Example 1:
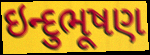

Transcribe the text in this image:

ઇન્દુભૂષણ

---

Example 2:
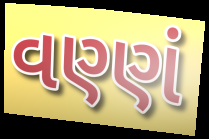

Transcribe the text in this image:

વણ્ણં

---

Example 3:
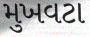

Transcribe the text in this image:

મુખવટા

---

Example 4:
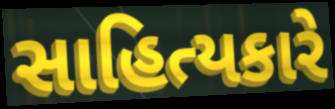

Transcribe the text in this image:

સાહિત્યકારે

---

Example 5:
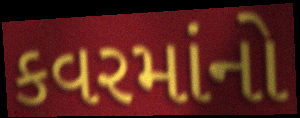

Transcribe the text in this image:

કવરમાંનો